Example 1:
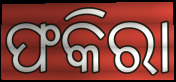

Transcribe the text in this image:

ଫକିରା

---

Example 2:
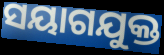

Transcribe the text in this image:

ସୟାଗଯୁକ୍ତ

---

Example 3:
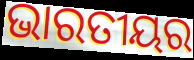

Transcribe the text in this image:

ଭାରତୀୟର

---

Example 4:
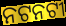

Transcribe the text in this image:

ନଟନଟୀ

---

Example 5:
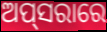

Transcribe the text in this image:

ଅପ୍‌ସରାରେ